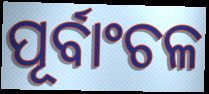
ପୂର୍ବାଂଚଳ